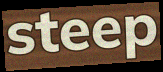
steep